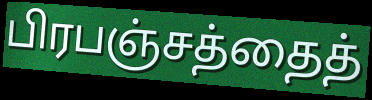
பிரபஞ்சத்தைத்